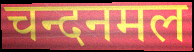
चन्दनमल